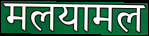
मलयामल